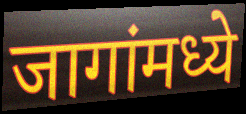
जागांमध्ये